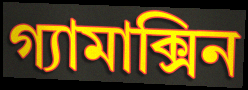
গ্যামাক্সিন